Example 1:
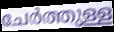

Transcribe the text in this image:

ചേർത്തുള്ള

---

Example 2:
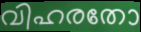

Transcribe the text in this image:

വിഹരതോ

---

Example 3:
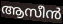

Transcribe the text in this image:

ആസീൻ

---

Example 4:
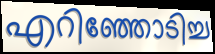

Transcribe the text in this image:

എറിഞ്ഞോടിച്ച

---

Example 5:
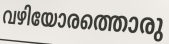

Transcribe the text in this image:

വഴിയോരത്തൊരു